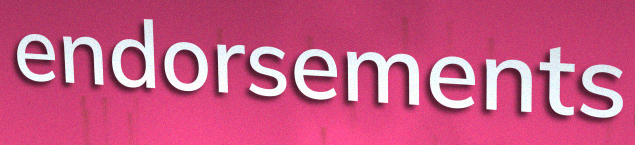
endorsements